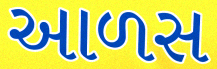
આળસ